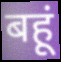
बहूं